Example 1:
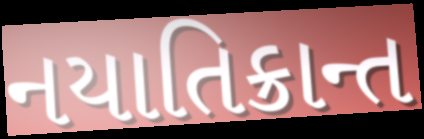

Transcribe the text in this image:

નયાતિક્રાન્ત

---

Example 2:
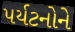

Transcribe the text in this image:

પર્યટનોને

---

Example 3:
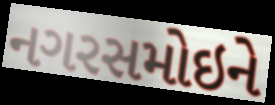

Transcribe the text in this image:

નગરસમોઇને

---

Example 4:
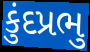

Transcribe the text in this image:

કુંદપ્રભુ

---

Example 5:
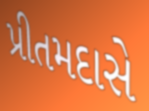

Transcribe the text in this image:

પ્રીતમદાસે